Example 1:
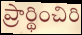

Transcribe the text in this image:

ప్రార్థించిరి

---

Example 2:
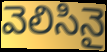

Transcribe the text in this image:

వెలిసినై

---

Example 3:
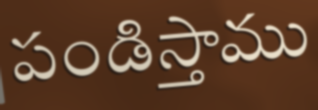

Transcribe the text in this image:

పండిస్తాము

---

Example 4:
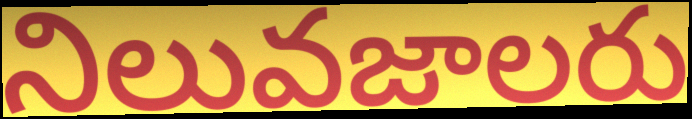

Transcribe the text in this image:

నిలువజాలరు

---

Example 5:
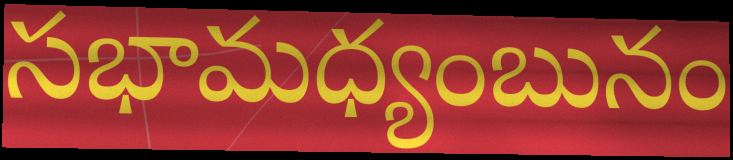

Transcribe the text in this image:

సభామధ్యంబునం